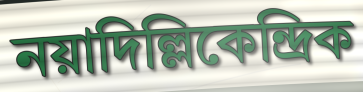
নয়াদিল্লিকেন্দ্রিক